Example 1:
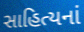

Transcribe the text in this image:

સાહિત્યનાં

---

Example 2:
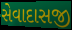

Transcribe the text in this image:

સેવાદાસજી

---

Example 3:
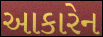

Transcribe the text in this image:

આકારેન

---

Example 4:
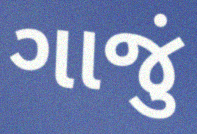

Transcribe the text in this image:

ગાજું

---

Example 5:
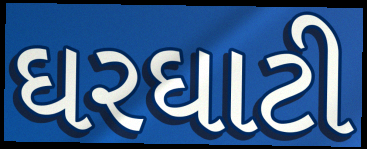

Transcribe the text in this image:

ઘરઘાટી